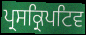
ਪ੍ਰਸਕ੍ਰਿਪਟਿਵ